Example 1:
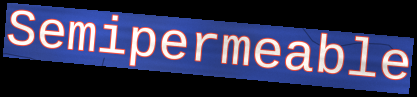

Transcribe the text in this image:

Semipermeable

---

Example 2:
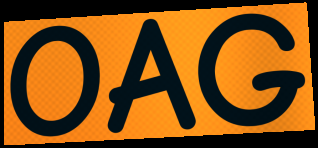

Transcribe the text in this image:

OAG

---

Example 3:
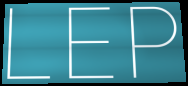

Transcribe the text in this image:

LEP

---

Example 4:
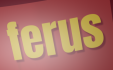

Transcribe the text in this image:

ferus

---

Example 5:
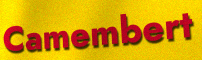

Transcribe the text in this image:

Camembert